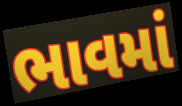
ભાવમાં